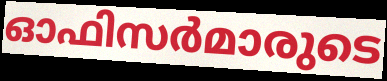
ഓഫിസർമാരുടെ